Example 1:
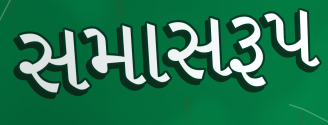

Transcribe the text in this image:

સમાસરૂપ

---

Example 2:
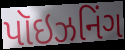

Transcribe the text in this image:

પૉઇઝનિંગ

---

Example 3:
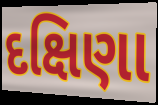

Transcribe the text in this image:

દક્ષિણા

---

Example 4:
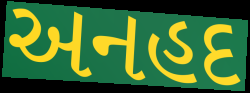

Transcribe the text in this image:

અનહદ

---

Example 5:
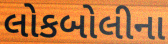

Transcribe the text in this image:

લોકબોલીના